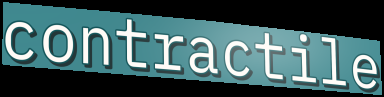
contractile